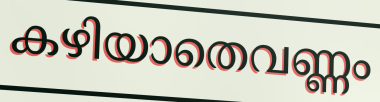
കഴിയാതെവണ്ണം